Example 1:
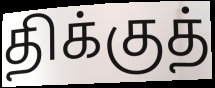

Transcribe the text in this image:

திக்குத்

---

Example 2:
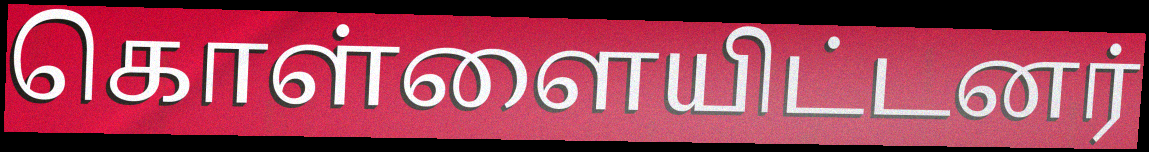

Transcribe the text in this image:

கொள்ளையிட்டனர்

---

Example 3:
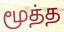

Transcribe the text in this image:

மூத்த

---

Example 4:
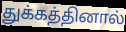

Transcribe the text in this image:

துக்கத்தினால்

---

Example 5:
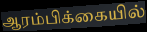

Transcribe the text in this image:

ஆரம்பிக்கையில்